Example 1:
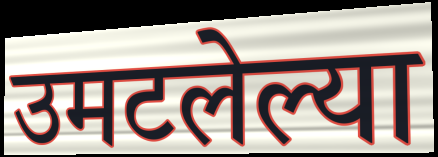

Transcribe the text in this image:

उमटलेल्या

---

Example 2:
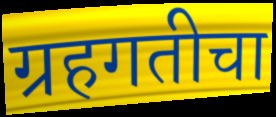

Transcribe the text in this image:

ग्रहगतीचा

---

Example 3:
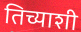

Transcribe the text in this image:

तिच्याशी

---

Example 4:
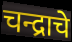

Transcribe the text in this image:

चन्द्राचे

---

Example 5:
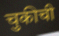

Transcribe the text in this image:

चुकीची